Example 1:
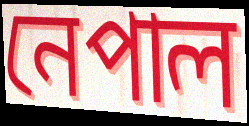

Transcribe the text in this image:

নেপাল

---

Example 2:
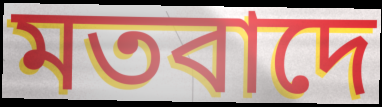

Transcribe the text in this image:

মতবাদে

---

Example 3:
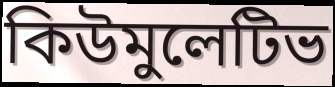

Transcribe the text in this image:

কিউমুলেটিভ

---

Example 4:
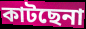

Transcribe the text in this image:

কাটছেনা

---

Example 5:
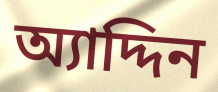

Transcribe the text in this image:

অ্যাদ্দিন